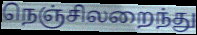
நெஞ்சிலறைந்து